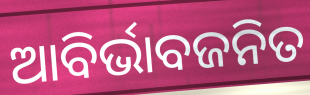
ଆବିର୍ଭାବଜନିତ